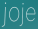
joje